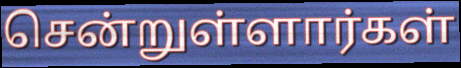
சென்றுள்ளார்கள்